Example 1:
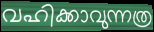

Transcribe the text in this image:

വഹിക്കാവുന്നത്ര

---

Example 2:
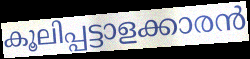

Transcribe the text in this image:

കൂലിപ്പട്ടാളക്കാരൻ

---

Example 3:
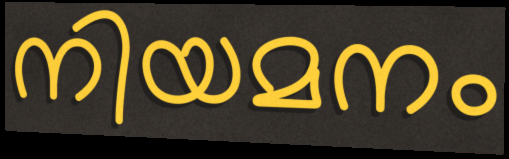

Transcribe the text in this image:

നിയമനം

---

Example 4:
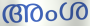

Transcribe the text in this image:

അംശ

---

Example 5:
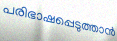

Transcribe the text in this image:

പരിഭാഷപ്പെടുത്താൻ